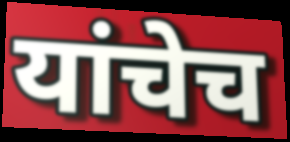
यांचेच